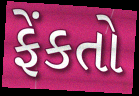
ફેંકતો